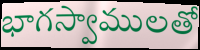
భాగస్వాములతో